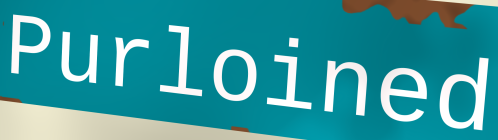
Purloined